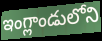
ఇంగ్లాండులోని